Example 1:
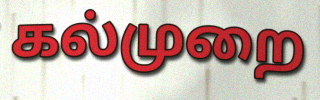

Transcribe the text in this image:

கல்முறை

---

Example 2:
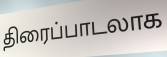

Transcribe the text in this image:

திரைப்பாடலாக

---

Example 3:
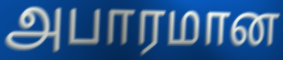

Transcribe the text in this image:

அபாரமான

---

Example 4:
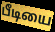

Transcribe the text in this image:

பீடியை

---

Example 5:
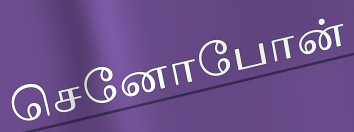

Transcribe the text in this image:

செனோபோன்